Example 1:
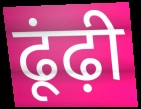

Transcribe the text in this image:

ढूंढ़ी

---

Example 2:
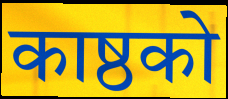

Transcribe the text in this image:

काष्ठको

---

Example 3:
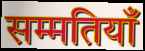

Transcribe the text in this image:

सम्मतियाँ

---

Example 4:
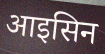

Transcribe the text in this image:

आइसिन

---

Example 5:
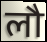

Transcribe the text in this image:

लौ